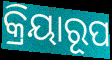
କ୍ରିୟାରୂପ